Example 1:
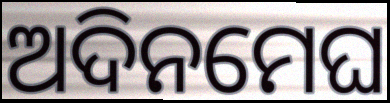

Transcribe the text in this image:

ଅଦିନମେଘ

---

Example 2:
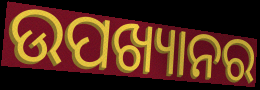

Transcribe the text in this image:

ଉପଖ୍ୟାନର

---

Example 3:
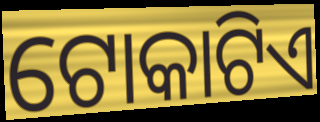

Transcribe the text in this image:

ଟୋକାଟିଏ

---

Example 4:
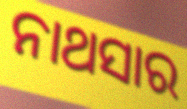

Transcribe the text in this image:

ନାଥସାର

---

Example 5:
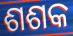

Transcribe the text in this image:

ଶଶକ